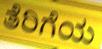
ತೆರಿಗೆಯ